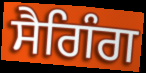
ਸੈਗਿੰਗ